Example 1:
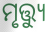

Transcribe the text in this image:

ମୃତ୍ତ୍ୟୁ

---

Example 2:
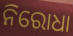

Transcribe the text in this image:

ନିରୋଧା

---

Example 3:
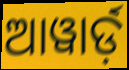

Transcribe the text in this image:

ଆୱାର୍ଡ଼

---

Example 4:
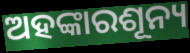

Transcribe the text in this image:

ଅହଙ୍କାରଶୂନ୍ୟ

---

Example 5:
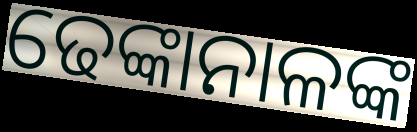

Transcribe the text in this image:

ଢେଙ୍କାନାଳଙ୍କ